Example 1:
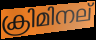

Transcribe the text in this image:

ക്രിമിനല്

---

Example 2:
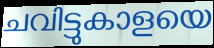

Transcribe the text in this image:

ചവിട്ടുകാളയെ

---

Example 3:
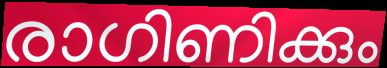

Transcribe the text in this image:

രാഗിണിക്കും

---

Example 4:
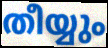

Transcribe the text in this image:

തീയ്യും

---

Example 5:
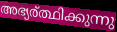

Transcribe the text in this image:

അഭ്യര്ത്ഥിക്കുന്നു